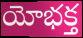
యోభక్త